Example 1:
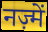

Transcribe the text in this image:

नज़्में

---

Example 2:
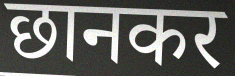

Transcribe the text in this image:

छानकर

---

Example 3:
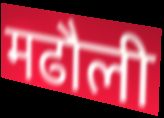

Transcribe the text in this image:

मढौली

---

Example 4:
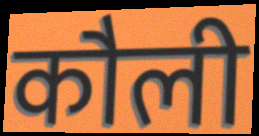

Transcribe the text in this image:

कौली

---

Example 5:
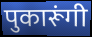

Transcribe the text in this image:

पुकारूंगी